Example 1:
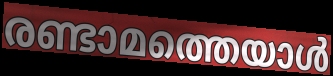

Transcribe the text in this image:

രണ്ടാമത്തെയാൾ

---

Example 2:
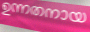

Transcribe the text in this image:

ഉന്നതനായ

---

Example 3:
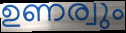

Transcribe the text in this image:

ഉണര്വും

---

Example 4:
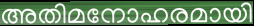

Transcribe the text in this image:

അതിമനോഹരമായി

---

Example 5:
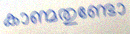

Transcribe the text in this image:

കാണ്മതുണ്ടോ